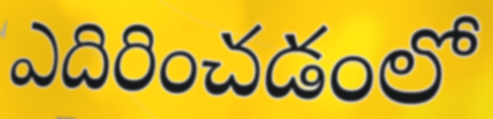
ఎదిరించడంలో